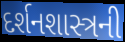
દર્શનશાસ્ત્રની